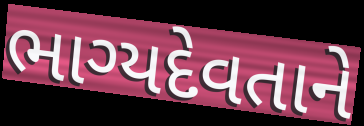
ભાગ્યદેવતાને